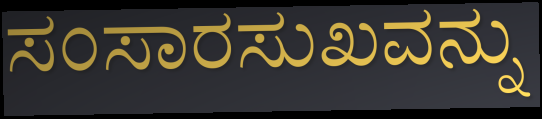
ಸಂಸಾರಸುಖವನ್ನು